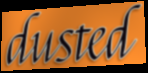
dusted